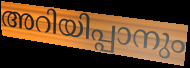
അറിയിപ്പാനും